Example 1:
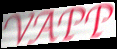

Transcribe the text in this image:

VAPP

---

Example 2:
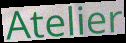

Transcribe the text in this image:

Atelier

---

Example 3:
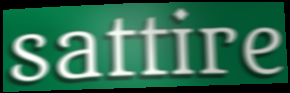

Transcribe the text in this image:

sattire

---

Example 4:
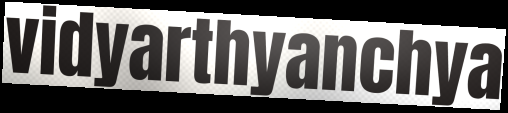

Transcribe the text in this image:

vidyarthyanchya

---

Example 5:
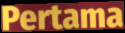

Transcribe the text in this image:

Pertama